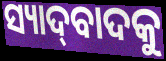
ସ୍ୟାଦ୍‌ବାଦକୁ